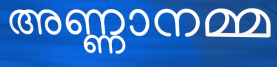
അണ്ണാനമ്മ